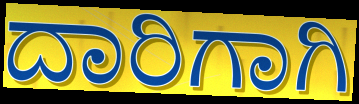
ದಾರಿಗಾಗಿ